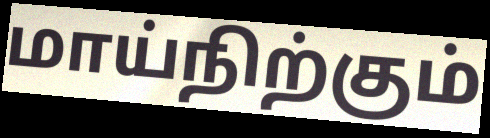
மாய்நிற்கும்